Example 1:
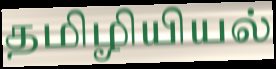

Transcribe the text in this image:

தமிழியியல்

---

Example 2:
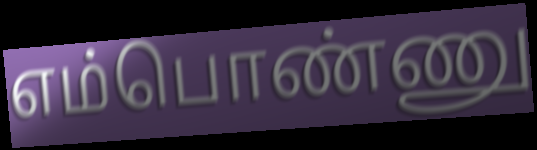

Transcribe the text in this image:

எம்பொண்ணு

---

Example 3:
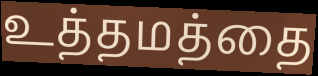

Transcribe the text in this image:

உத்தமத்தை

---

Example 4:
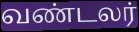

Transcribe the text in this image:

வண்டலர்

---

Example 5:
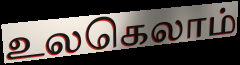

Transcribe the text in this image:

உலகெலாம்